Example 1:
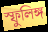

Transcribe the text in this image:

স্ফুলিঙ্গ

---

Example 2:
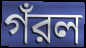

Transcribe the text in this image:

গঁরল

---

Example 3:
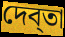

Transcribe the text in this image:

দেব্তা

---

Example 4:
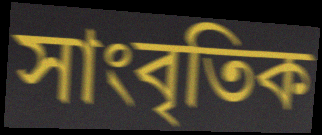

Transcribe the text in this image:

সাংবৃতিক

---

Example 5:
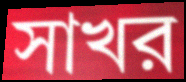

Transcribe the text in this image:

সাখর